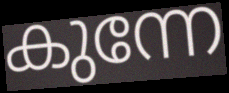
കുന്നേ